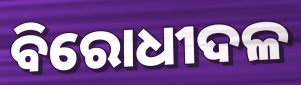
ବିରୋଧୀଦଳ